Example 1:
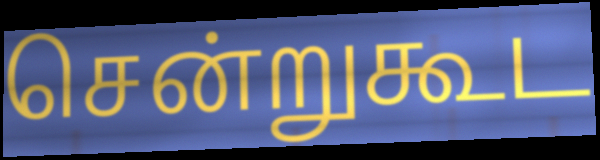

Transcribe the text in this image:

சென்றுகூட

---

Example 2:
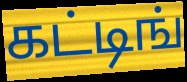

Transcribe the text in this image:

கட்டிங்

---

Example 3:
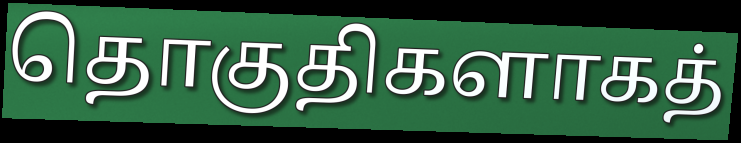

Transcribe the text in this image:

தொகுதிகளாகத்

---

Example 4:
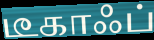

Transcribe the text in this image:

டீகாஃப்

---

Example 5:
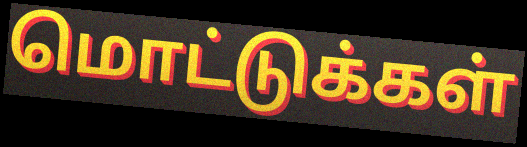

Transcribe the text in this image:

மொட்டுக்கள்